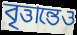
বৃত্তান্তেও